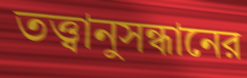
তত্ত্বানুসন্ধানের